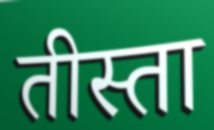
तीस्ता